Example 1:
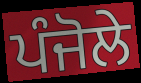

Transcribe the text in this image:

ਪੰਜੋਲੇ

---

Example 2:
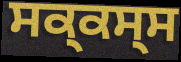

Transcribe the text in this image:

ਸਕ੍ਕਸ੍ਸ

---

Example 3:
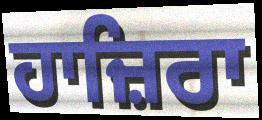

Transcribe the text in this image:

ਹਾਜ਼ਿਰਾ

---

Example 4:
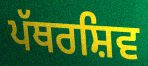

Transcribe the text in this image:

ਪੱਥਰਸ਼ਿਵ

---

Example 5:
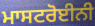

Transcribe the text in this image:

ਮਾਸਟਰੋਈਨੀ